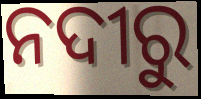
ନଦୀରୁ